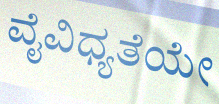
ವೈವಿಧ್ಯತೆಯೇ